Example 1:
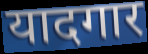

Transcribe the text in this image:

यादगार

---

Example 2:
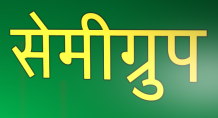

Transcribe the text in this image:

सेमीग्रुप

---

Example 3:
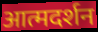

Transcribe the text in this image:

आत्मदर्शन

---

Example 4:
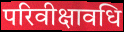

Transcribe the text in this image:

परिवीक्षावधि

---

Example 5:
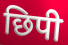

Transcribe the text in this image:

छिपी